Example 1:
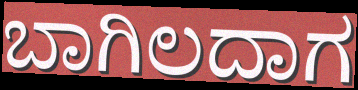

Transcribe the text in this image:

ಬಾಗಿಲದಾಗ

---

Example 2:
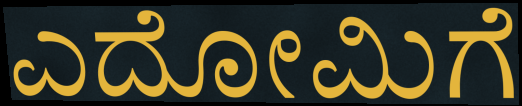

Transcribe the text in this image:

ಎದೋಮಿಗೆ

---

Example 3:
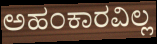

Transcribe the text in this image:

ಅಹಂಕಾರವಿಲ್ಲ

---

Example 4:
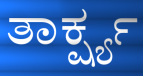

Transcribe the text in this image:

ತಾರ್ಕ್ಷ್ಯ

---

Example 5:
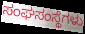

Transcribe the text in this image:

ಸಂಘಸಂಸ್ಥೆಗಳು